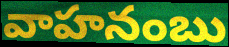
వాహనంబు